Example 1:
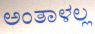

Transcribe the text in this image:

ಅಂತಾಳಲ್ಲ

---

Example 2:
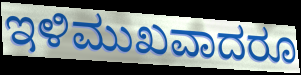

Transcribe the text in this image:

ಇಳಿಮುಖವಾದರೂ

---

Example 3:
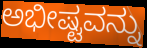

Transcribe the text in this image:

ಅಭೀಷ್ಟವನ್ನು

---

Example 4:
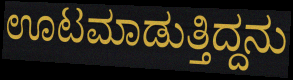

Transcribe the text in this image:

ಊಟಮಾಡುತ್ತಿದ್ದನು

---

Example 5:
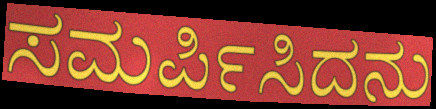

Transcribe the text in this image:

ಸಮರ್ಪಿಸಿದನು